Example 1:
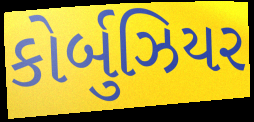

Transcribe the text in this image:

કોર્બુઝિયર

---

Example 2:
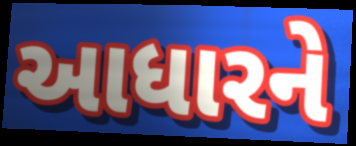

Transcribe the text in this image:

આધારને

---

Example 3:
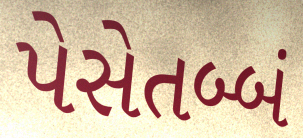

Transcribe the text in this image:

પેસેતબ્બં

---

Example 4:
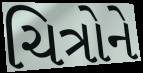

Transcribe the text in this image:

ચિત્રોને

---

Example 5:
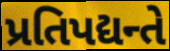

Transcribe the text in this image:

પ્રતિપદ્યન્તે